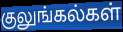
குலுங்கல்கள்